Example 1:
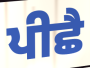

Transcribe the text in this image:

ਪੀਛੈ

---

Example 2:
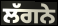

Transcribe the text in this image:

ਲੱਗਨੇ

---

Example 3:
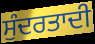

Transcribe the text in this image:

ਸੁੰਦਰਤਾਦੀ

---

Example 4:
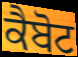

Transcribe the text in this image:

ਕੈਬੋਟ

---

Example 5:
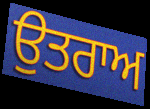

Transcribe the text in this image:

ਉਤਰਾਅ